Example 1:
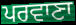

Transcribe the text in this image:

ਪਰਵਾਣਾ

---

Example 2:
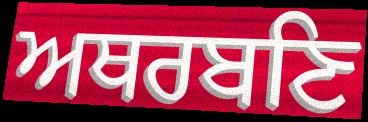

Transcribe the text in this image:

ਅਥਰਬਣਿ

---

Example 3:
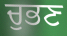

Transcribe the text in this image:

ਚੁਭਣ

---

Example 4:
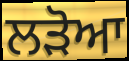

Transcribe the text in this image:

ਲੜੋਆ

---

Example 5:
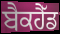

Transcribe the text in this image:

ਬੈਕਹੈੱਡ